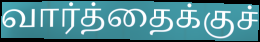
வார்த்தைக்குச்